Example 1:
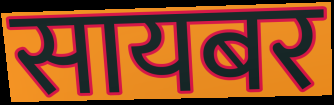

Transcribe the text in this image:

सायबर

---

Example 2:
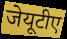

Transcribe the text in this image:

जेयूटीए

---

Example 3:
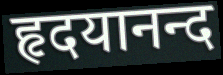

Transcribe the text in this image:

हृदयानन्द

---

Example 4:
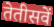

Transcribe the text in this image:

तेतीसवें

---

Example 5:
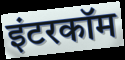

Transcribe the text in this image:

इंटरकॉम